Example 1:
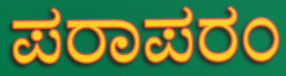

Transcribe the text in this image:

ಪರಾಪರಂ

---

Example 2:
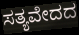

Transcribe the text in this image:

ಸತ್ಯವೇದದ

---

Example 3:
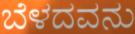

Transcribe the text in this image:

ಬೆಳದವನು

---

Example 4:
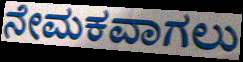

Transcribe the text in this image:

ನೇಮಕವಾಗಲು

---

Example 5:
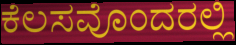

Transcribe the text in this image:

ಕೆಲಸವೊಂದರಲ್ಲಿ